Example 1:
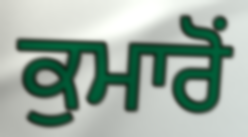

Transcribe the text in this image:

ਕੁਮਾਰੋਂ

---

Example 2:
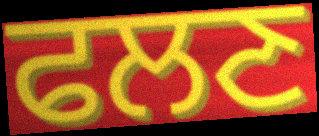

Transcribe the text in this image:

ਫਲਣ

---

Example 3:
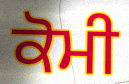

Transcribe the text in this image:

ਕੋਮੀ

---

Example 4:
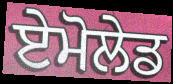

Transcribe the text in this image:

ਏਮੋਲੇਡ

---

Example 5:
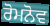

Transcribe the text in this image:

ਰੋਮਨੋਵ